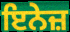
ਇਨੇਜ਼